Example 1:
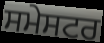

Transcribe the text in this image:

ਸਮੇਸਟਰ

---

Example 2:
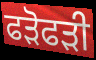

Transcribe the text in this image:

ਫੜੋਫੜੀ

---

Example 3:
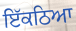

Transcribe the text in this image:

ਇੱਕਠਿਆ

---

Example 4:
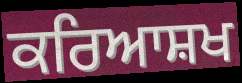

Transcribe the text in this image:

ਕਰਿਆਸ਼ਖ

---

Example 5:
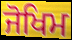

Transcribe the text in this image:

ਜੋਖਿਮ